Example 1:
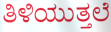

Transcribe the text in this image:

ತಿಳಿಯುತ್ತಲೆ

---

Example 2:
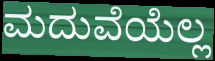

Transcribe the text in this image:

ಮದುವೆಯೆಲ್ಲ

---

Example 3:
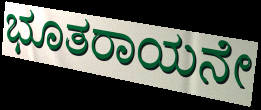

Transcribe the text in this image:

ಭೂತರಾಯನೇ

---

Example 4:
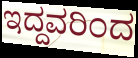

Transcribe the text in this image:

ಇದ್ದವರಿಂದ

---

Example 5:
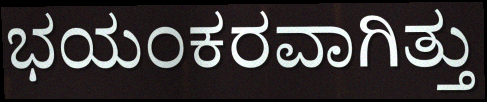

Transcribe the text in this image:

ಭಯಂಕರವಾಗಿತ್ತು